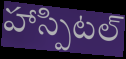
హాస్పిటల్